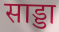
साड्डा